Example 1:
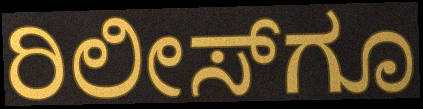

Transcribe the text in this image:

ರಿಲೀಸ್‌ಗೂ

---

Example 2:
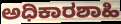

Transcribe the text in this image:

ಅಧಿಕಾರಶಾಹಿ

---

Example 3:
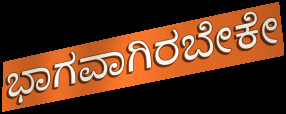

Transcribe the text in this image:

ಭಾಗವಾಗಿರಬೇಕೇ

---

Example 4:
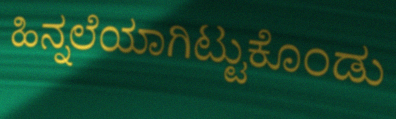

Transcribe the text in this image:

ಹಿನ್ನಲೆಯಾಗಿಟ್ಟುಕೊಂಡು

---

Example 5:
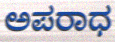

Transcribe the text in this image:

ಅಪರಾಧ